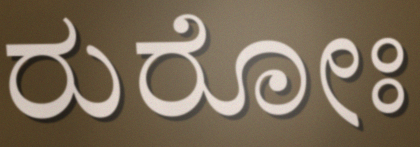
ರುರೋಃ